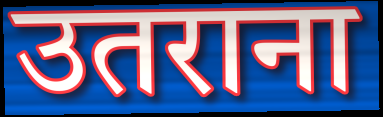
उतराना